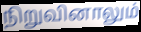
நிறுவினாலும்